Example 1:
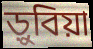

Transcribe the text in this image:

ড়ুবিয়া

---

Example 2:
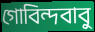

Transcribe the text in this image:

গোবিন্দবাবু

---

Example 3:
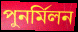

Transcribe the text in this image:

পুনর্মিলন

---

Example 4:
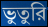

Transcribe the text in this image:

ভুতুরি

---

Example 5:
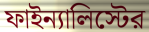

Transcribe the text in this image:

ফাইন্যালিস্টের